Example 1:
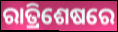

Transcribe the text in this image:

ରାତ୍ରିଶେଷରେ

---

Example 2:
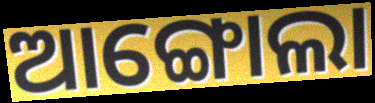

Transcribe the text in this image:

ଆଙ୍ଗୋଲା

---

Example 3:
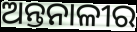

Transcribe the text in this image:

ଅନ୍ତନାଳୀର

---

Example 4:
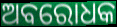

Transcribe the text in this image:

ଅବରୋଧକ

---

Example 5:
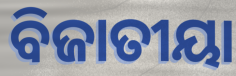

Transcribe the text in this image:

ବିଜାତୀୟା